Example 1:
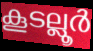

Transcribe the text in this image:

കൂടല്ലൂർ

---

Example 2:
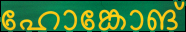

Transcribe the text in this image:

ഹോങ്കോങ്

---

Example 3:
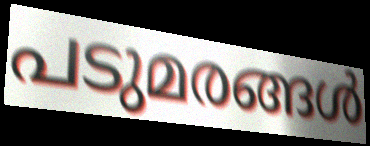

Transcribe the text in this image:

പടുമരങ്ങൾ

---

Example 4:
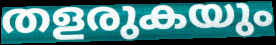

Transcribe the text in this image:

തളരുകയും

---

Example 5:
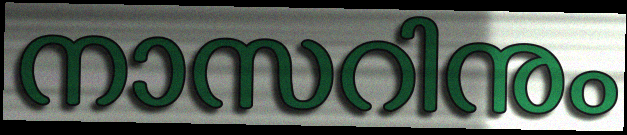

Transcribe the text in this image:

നാസറിനും